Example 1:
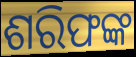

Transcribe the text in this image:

ଶରିଫଙ୍କ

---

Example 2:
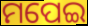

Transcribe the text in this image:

ମପେଇ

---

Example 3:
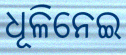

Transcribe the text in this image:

ଧୂଳିନେଇ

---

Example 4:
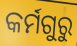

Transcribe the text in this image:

କର୍ମଗୁରୁ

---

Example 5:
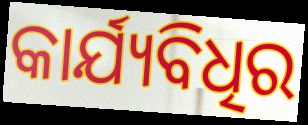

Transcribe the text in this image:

କାର୍ଯ୍ୟବିଧିର